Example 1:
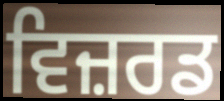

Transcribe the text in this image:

ਵਿਜ਼ਰਡ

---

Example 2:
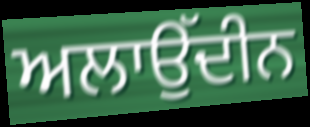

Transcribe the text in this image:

ਅਲਾਉੱਦੀਨ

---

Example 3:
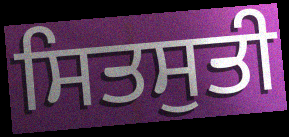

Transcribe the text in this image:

ਸਿਤਸੁਤੀ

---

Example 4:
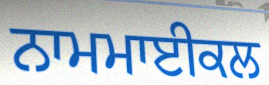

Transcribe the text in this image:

ਨਾਮਮਾਈਕਲ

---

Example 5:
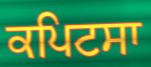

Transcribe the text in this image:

ਕਪਿਟਸਾ